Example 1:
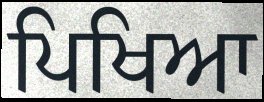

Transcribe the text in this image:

ਪਿਖਿਆ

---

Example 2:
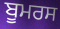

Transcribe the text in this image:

ਬੂਮਰਸ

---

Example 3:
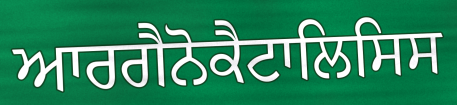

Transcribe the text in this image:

ਆਰਗੈਨੋਕੈਟਾਲਿਸਿਸ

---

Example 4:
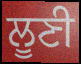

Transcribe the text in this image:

ਲੂਣੀ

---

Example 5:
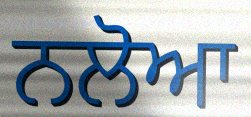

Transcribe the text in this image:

ਨਲੋਆ